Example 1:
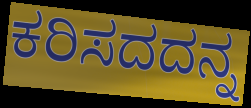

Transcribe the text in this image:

ಕರಿಸದದನ್ನ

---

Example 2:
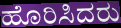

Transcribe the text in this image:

ಹೊರಿಸಿದರು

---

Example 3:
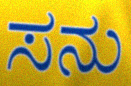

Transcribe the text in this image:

ಸನು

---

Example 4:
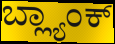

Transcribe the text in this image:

ಬ್ಲ್ಯಾಂಕ್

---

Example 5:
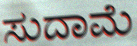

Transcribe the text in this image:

ಸುದಾಮೆ